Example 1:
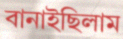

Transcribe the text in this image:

বানাইছিলাম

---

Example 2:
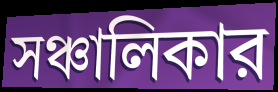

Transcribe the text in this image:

সঞ্চালিকার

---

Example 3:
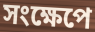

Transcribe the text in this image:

সংক্ষেপে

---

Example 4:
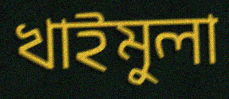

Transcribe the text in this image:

খাইমুলা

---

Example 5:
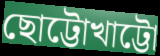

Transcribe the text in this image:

ছোট্টোখাট্টো